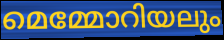
മെമ്മോറിയലും